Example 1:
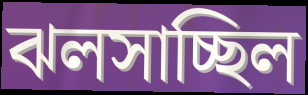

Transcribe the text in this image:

ঝলসাচ্ছিল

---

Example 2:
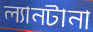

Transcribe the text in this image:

ল্যানটানা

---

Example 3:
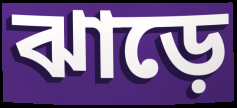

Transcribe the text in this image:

ঝাড়ে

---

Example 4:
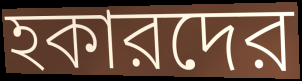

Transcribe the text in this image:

হকারদের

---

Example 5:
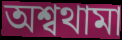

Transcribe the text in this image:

অশ্বথামা